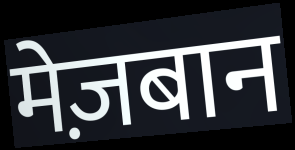
मेज़बान